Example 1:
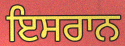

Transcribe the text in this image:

ਇਸਰਾਨ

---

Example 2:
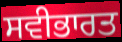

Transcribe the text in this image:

ਸਵੀਭਾਰਤ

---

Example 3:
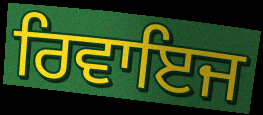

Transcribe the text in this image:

ਰਿਵਾਇਜ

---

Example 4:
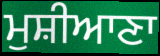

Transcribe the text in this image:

ਮੁਸ਼ੀਆਣਾ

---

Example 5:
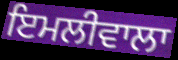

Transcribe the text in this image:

ਇਮਲੀਵਾਲਾ